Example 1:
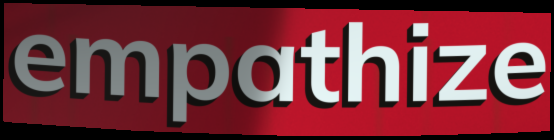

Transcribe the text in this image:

empathize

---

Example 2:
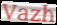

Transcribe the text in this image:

Vazh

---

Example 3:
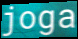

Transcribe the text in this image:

joga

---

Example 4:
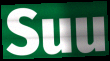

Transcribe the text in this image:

Suu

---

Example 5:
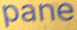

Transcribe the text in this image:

pane